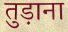
तुड़ाना